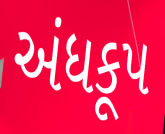
અંધકૂપ